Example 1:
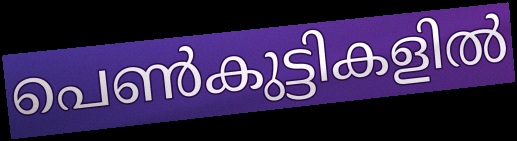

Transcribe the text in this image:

പെൺകുട്ടികളിൽ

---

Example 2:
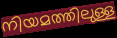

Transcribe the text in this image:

നിയമത്തിലുള്ള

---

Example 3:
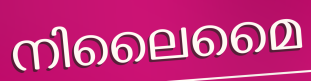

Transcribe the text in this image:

നിലൈമൈ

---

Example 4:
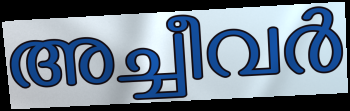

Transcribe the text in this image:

അച്ചീവർ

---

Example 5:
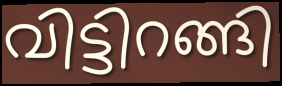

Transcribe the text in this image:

വിട്ടിറങ്ങി